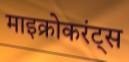
माइक्रोकरंट्स